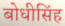
बोधीसिंह